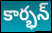
కార్భన్